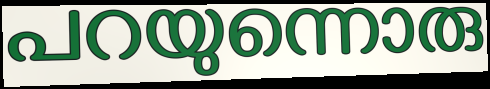
പറയുന്നൊരു